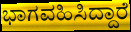
ಭಾಗವಹಿಸಿದ್ದಾರೆ